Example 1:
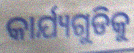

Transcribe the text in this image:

କାର୍ଯ୍ୟଗୁଡିକୁ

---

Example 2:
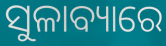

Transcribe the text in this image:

ସୁଳାବ୍ୟାରେ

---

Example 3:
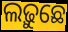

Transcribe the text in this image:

ଲଢ଼ୁଛେ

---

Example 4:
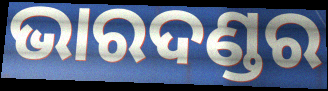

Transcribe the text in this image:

ଭାରଦଣ୍ଡର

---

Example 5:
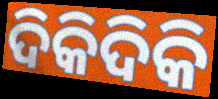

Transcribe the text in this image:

ଦିକିଦିକି